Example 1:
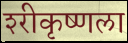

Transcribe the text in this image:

श्रीकृष्णला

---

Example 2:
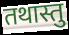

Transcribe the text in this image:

तथास्तु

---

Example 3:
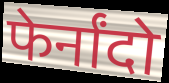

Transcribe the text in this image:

फेर्नांदो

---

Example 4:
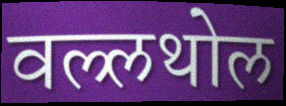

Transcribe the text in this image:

वल्लथोल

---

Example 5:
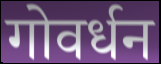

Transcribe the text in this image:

गोवर्धन